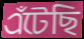
এঁটেছি